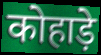
कोहाड़े